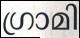
ഗ്രാമി